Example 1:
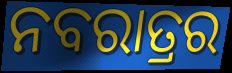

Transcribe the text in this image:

ନବରାତ୍ରର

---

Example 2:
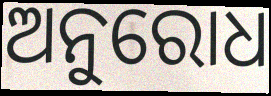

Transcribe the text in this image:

ଅନୁରୋଧ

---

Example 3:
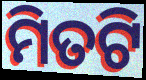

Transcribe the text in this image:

ମିତଟି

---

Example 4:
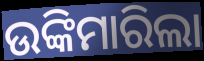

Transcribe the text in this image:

ଉଙ୍କିମାରିଲା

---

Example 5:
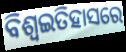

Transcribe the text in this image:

ବିଶ୍ଵଇତିହାସରେ